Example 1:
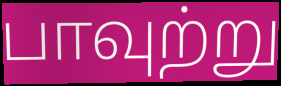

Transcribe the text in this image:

பாவுற்று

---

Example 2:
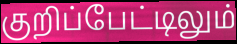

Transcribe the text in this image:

குறிப்பேட்டிலும்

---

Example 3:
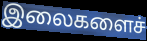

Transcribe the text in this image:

இலைகளைச்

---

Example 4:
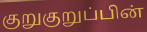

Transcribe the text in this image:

குறுகுறுப்பின்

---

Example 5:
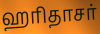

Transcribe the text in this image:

ஹரிதாசர்